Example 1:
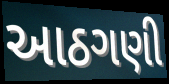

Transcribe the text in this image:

આઠગણી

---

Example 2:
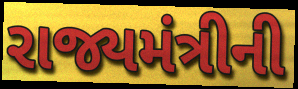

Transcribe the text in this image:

રાજ્યમંત્રીની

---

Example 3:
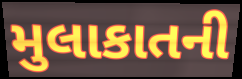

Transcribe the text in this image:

મુલાકાતની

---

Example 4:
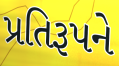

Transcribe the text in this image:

પ્રતિરૂપને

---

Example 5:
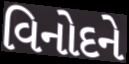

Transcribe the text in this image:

વિનોદને